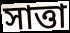
সাত্তা